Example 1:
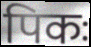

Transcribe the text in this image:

पिकः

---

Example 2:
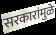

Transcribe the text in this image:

सरकारांमुळे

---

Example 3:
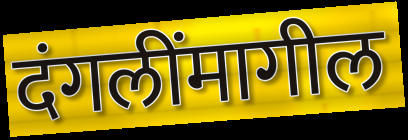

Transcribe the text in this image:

दंगलींमागील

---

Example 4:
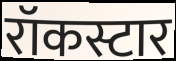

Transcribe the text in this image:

रॉकस्टार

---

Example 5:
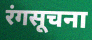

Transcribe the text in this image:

रंगसूचना